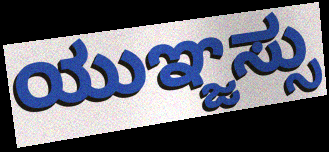
ಯುಞ್ಜಸ್ಸು